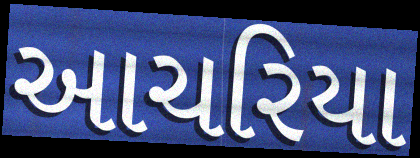
આચરિયા